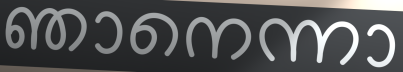
ഞാനെന്നാ